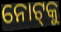
ନୋଟ୍‌କୁ